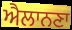
ਐਲਾਨਣਾ